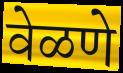
वेळणे